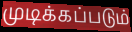
முடிக்கப்படும்